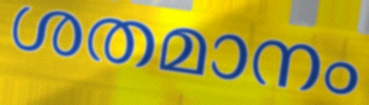
ശതമാനം